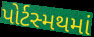
પોર્ટસ્મથમાં